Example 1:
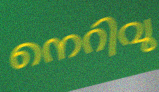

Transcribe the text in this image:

നെറിവു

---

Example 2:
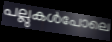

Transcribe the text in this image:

പല്ലുകൾപോലെ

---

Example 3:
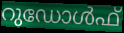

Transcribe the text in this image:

റുഡോൾഫ്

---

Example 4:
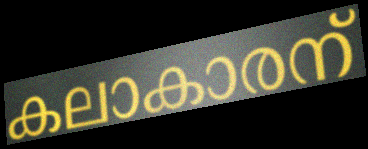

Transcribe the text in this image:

കലാകാരന്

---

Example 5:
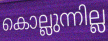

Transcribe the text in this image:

കൊല്ലുന്നില്ല